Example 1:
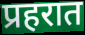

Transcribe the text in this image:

प्रहरात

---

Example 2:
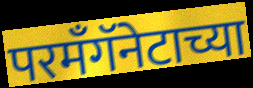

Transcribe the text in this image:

परमँगॅनेटाच्या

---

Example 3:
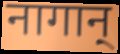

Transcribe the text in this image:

नागान्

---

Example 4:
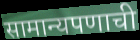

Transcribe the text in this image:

सामान्यपणाची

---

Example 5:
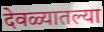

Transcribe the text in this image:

देवळ्यातल्या